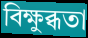
বিক্ষুব্ধতা